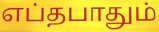
எப்தபாதும்